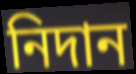
নিদান